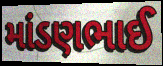
માંડણભાઈ